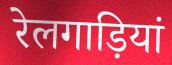
रेलगाड़ियां